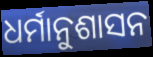
ଧର୍ମାନୁଶାସନ